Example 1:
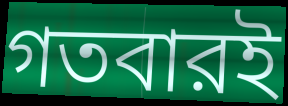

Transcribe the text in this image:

গতবারই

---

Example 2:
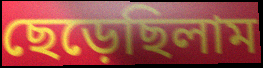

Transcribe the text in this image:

ছেড়েছিলাম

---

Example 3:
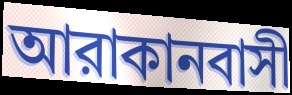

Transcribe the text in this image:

আরাকানবাসী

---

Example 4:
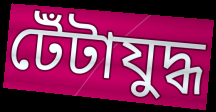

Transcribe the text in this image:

টেঁটাযুদ্ধ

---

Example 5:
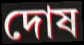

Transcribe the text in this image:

দোষ